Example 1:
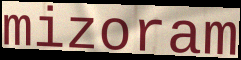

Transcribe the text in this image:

mizoram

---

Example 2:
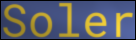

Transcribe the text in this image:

Soler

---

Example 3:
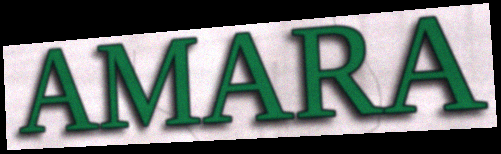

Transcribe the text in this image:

AMARA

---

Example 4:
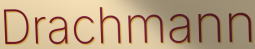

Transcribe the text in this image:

Drachmann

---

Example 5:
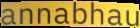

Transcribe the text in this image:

annabhau